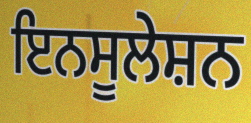
ਇਨਸੂਲੇਸ਼ਨ